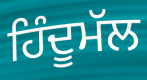
ਹਿੰਦੂਮੱਲ